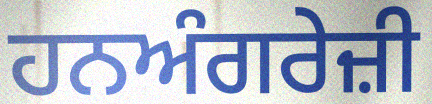
ਹਨਅੰਗਰੇਜ਼ੀ